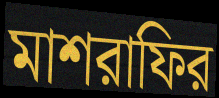
মাশরাফির